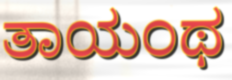
ತಾಯಂಥ